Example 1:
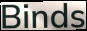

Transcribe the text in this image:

Binds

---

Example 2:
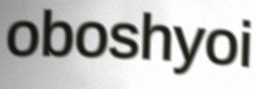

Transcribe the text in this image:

oboshyoi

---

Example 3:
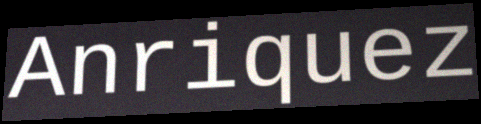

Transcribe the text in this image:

Anriquez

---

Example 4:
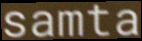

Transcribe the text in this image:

samta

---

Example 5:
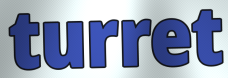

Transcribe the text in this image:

turret